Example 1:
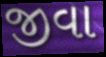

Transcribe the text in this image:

જીવા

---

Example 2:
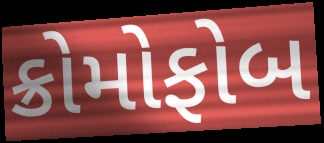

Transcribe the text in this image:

ક્રોમોફોબ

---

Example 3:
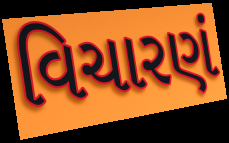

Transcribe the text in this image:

વિચારણં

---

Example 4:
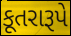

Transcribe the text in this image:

કૂતરારૂપે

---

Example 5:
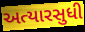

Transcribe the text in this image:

અત્યારસુધી